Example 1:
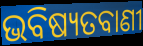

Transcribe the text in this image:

ଭବିଷ୍ୟତବାଣୀ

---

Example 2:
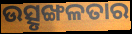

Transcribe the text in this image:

ଉତ୍ସୃଙ୍ଖଳତାର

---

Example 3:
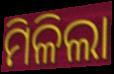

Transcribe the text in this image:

ମିଳିଲା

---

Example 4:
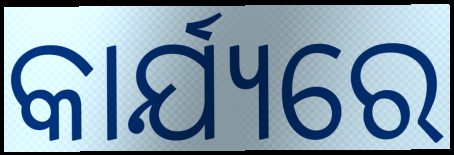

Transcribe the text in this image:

କାର୍ଯ୍ୟରେ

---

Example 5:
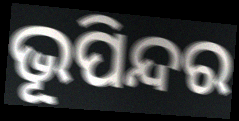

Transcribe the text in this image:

ଭୂପିନ୍ଦର